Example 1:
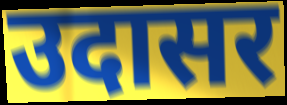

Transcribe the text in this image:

उदासर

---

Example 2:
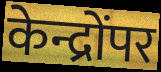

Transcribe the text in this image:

केन्द्रोंपर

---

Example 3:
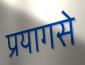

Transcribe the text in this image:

प्रयागसे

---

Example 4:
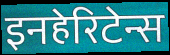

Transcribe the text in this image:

इनहेरिटेन्स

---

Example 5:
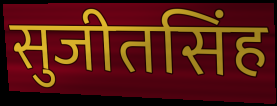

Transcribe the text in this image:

सुजीतसिंह